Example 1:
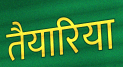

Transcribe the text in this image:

तैयारिया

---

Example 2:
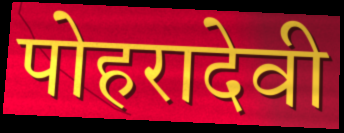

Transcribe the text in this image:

पोहरादेवी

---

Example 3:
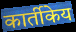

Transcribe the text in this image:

कार्तीकेय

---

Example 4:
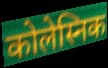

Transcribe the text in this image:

कोलेस्निक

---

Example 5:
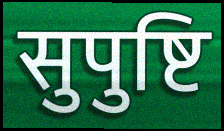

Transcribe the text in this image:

सुपुष्टि